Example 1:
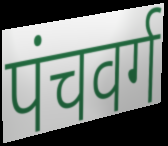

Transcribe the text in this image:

पंचवर्ग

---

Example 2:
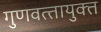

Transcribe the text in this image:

गुणवत्‍तायुक्‍त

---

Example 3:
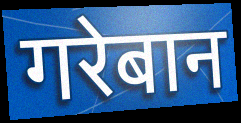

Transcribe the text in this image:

गरेबान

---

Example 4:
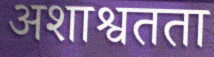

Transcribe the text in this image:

अशाश्वतता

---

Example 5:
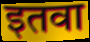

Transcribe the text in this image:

इतवा